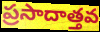
ప్రసాదాత్తవ